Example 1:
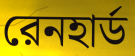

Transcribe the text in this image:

রেনহার্ড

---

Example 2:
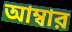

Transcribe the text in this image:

আম্বার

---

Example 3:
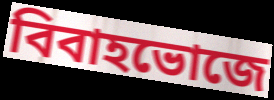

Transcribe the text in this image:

বিবাহভোজে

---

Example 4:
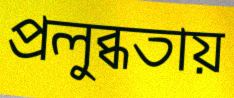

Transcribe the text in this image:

প্রলুব্ধতায়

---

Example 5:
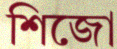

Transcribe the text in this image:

শিজো